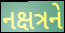
નક્ષત્રને